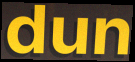
dun